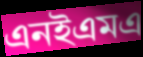
এনইএমএ